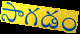
సాగడం